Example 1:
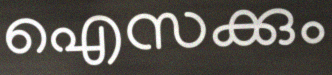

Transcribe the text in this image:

ഐസക്കും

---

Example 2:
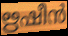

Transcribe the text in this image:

ഋഷീൻ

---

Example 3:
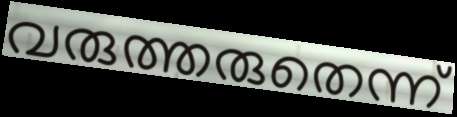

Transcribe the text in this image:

വരുത്തരുതെന്ന്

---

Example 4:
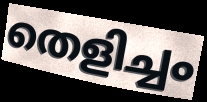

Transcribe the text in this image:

തെളിച്ചം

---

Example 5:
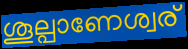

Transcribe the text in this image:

ശൂല്പാണേശ്വര്